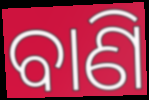
ବାଣି